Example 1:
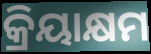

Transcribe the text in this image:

କ୍ରିୟାକ୍ଷମ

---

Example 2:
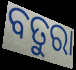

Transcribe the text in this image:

ବତୁରା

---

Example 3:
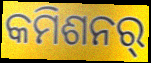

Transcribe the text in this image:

କମିଶନର୍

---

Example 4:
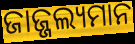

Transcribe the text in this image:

ଜାଜ୍ଜଲ୍ୟମାନ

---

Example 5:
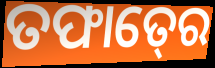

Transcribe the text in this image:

ତଫାତ୍‍ରେ